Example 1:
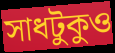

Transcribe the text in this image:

সাধটুকুও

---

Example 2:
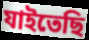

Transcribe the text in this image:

যাইতেছি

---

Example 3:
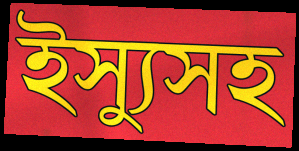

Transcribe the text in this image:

ইস্যুসহ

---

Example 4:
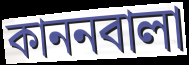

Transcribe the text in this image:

কাননবালা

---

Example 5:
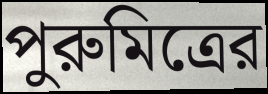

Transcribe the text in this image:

পুরুমিত্রের